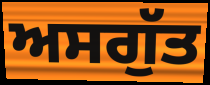
ਅਸਗੁੱਤ